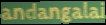
andangalai